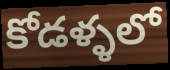
కోడళ్ళలో